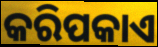
କରିପକାଏ